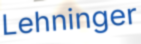
Lehninger